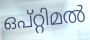
ഒപ്റ്റിമൽ